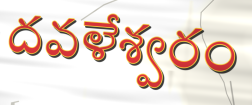
దవళేశ్వరం